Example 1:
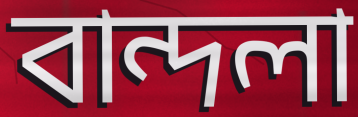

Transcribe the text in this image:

বান্দলা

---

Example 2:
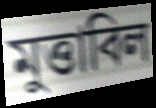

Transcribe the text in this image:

মুত্তাবিল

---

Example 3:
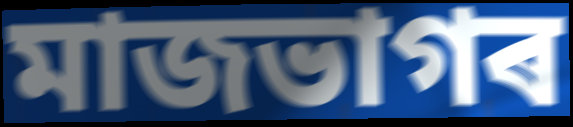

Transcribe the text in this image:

মাজভাগৰ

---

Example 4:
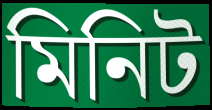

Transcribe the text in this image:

মিনিট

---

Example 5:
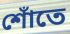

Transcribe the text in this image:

শোঁতে